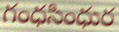
గంధసింధుర